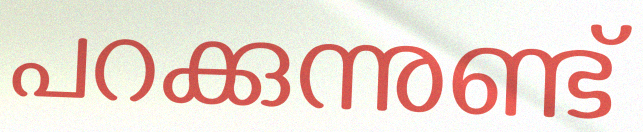
പറക്കുന്നുണ്ട്